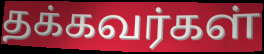
தக்கவர்கள்